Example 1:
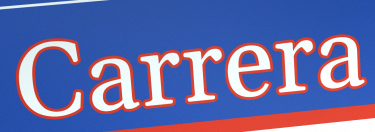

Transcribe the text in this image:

Carrera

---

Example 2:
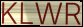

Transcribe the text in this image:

KLWR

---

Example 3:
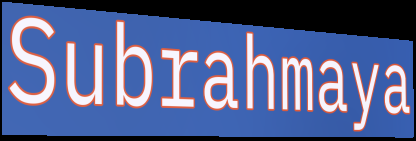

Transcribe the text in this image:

Subrahmaya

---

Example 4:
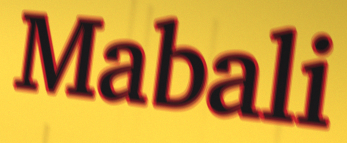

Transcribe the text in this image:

Mabali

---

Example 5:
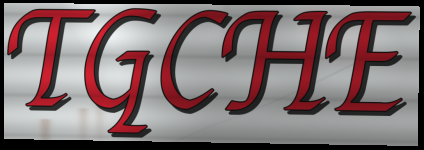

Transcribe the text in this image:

TGCHE